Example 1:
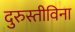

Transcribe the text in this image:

दुरुस्तीविना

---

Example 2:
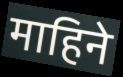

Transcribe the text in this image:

माहिने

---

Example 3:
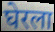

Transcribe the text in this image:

घेरला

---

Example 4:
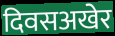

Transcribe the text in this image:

दिवसअखेर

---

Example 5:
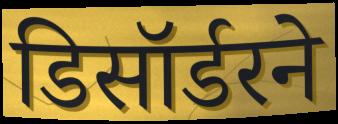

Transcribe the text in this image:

डिसॉर्डरने